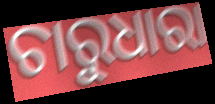
ଚାରୁଧାରା